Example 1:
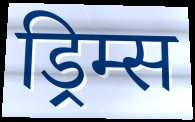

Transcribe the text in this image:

ड्रिम्स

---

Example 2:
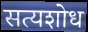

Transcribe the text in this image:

सत्यशोध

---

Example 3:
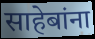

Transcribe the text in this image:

साहेबांना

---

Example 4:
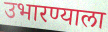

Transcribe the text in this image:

उभारण्याला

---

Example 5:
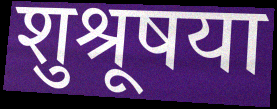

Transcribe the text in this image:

शुश्रूषया